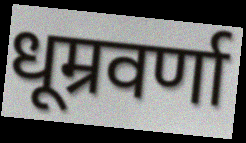
धूम्रवर्णा